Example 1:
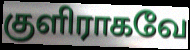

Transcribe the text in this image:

குளிராகவே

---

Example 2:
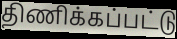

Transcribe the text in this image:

திணிக்கப்பட்டு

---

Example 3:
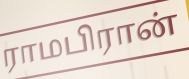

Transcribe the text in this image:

ராமபிரான்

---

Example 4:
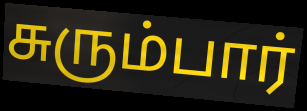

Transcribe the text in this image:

சுரும்பார்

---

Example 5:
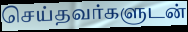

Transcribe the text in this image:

செய்தவர்களுடன்